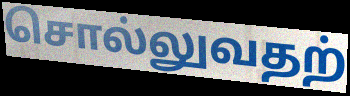
சொல்லுவதற்